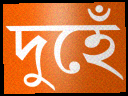
দুহেঁ